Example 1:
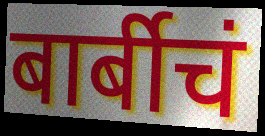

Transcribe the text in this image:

बार्बीचं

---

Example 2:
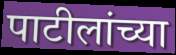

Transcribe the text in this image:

पाटीलांच्या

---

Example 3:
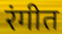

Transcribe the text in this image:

रंगीत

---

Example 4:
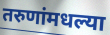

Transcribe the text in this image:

तरुणांमधल्या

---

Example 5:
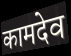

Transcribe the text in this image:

कामदेव